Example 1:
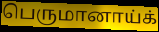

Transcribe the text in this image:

பெருமானாய்க்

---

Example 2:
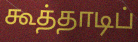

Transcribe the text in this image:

கூத்தாடிப்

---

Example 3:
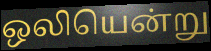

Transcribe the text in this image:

ஒலியென்று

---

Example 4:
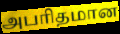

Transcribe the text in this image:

அபரிதமான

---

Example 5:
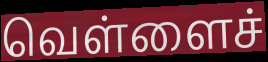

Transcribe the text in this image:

வெள்ளைச்